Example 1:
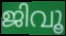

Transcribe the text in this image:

ജിവൂ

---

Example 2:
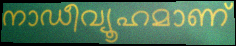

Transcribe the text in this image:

നാഡീവ്യൂഹമാണ്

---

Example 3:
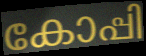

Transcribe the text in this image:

കോപ്പി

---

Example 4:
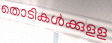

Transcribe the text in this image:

തൊടികൾക്കുളള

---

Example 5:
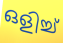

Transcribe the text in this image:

ഒളിച്ച്